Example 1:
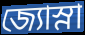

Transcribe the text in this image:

জ্যোস্না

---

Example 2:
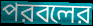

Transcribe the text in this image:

পরবলের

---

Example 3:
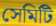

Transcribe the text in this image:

সেমিটি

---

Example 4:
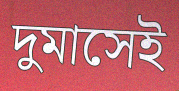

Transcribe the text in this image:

দুমাসেই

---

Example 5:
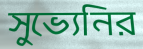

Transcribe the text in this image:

সুভ্যেনির